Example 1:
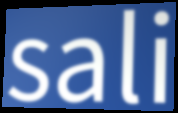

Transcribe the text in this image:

sali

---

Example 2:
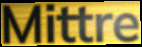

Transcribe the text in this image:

Mittre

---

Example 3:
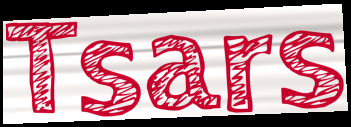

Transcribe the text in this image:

Tsars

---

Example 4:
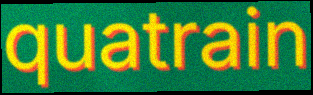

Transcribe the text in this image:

quatrain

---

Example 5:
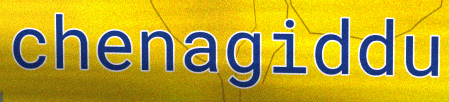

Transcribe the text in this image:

chenagiddu